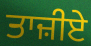
ਤਾਜ਼ੀਏ